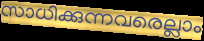
സാധിക്കുന്നവരെല്ലാം